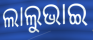
ଲାଲୁଭାଇ